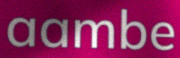
aambe